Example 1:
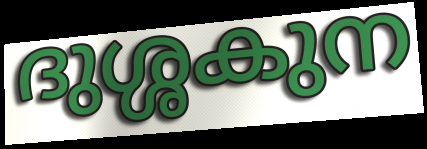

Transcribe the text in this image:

ദുശ്ശകുന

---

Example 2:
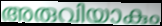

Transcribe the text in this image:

അരുവിയാകും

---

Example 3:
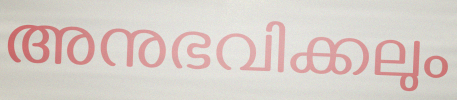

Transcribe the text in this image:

അനുഭവിക്കലും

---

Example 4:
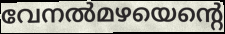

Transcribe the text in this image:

വേനൽമഴയെന്റെ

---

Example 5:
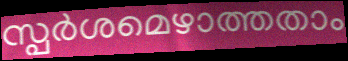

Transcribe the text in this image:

സ്പർശമെഴാത്തതാം